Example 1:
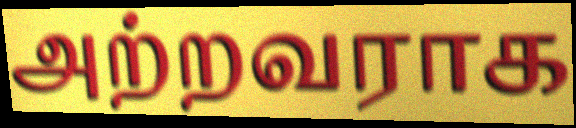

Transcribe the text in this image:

அற்றவராக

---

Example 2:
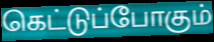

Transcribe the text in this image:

கெட்டுப்போகும்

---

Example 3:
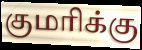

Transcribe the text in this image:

குமரிக்கு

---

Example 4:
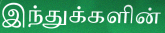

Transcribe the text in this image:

இந்துக்களின்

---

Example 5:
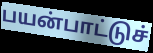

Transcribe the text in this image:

பயன்பாட்டுச்